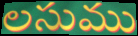
లసుము